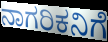
ನಾಗರಿಕನಿಗೆ